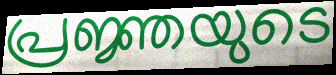
പ്രജ്ഞയുടെ